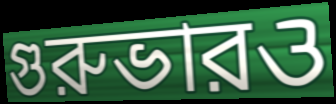
গুরুভারও